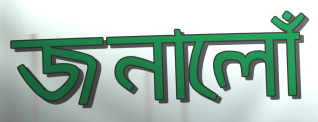
জনালোঁ